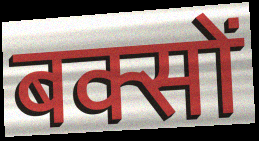
बक्सों